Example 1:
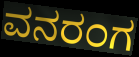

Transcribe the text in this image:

ವನರಂಗ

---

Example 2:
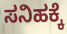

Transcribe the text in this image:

ಸನಿಹಕ್ಕೆ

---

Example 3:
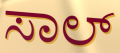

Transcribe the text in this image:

ಸಾಲ್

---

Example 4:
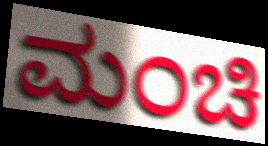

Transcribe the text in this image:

ಮಂಚಿ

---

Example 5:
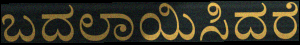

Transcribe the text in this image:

ಬದಲಾಯಿಸಿದರೆ